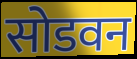
सोडवन